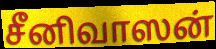
சீனிவாஸன்